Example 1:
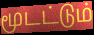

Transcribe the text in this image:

மூடட்டும்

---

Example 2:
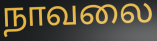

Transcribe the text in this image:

நாவலை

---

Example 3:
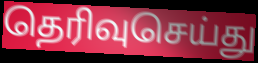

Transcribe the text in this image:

தெரிவுசெய்து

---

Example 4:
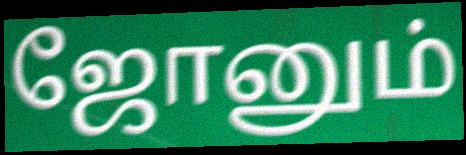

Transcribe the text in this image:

ஜோனும்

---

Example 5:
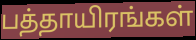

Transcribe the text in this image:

பத்தாயிரங்கள்